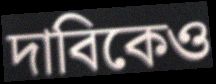
দাবিকেও